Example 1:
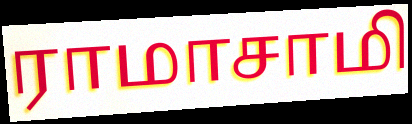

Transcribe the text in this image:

ராமாசாமி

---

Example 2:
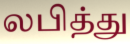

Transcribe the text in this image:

லபித்து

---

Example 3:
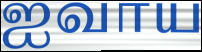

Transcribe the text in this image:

ஐவாய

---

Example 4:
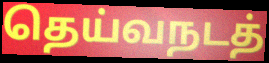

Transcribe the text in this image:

தெய்வநடத்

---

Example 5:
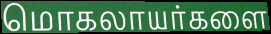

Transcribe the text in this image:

மொகலாயர்களை